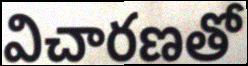
విచారణతో